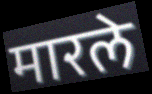
मारले